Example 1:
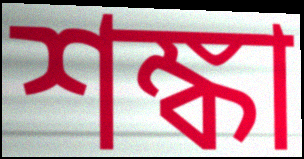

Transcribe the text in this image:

শঙ্কা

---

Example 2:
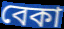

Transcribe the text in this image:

বেকা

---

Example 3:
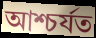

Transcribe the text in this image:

আশ্চৰ্যত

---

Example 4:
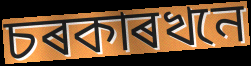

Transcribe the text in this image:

চৰকাৰখনে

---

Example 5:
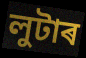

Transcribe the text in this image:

লুটাৰ